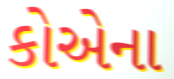
કોએના